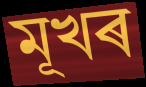
মূখৰ